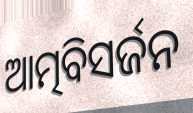
ଆତ୍ମବିସର୍ଜନ